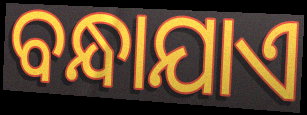
ବନ୍ଧାଯାଏ